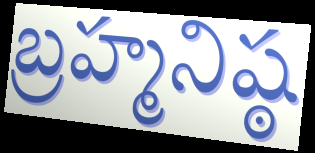
బ్రహ్మనిష్ఠ